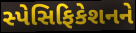
સ્પેસિફિકેશનને